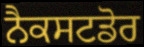
ਨੈਕਸਟਡੋਰ